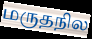
மருதநில